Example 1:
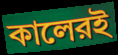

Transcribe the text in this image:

কালেরই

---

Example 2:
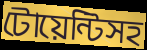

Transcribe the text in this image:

টোয়েন্টিসহ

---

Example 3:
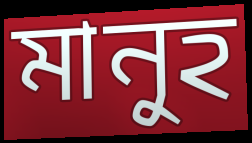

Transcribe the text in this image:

মানুহ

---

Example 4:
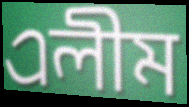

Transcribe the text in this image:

এলীম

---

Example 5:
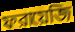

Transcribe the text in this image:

ফরায়েজি